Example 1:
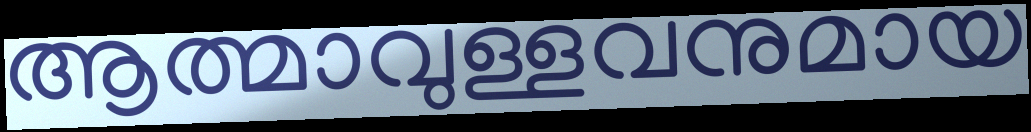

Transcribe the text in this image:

ആത്മാവുള്ളവനുമായ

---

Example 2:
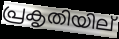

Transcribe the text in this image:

പ്രകൃതിയില്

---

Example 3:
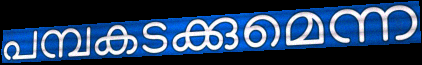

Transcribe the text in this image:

പമ്പകടക്കുമെന്ന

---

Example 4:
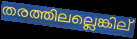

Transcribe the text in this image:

തരത്തിലല്ലെങ്കില്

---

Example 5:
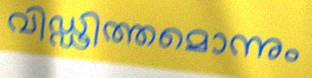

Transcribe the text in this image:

വിഡ്ഢിത്തമൊന്നും